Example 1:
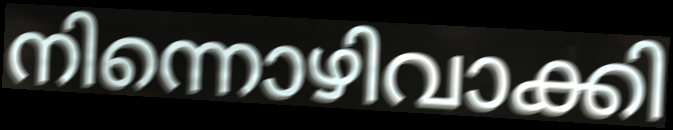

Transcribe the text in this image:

നിന്നൊഴിവാക്കി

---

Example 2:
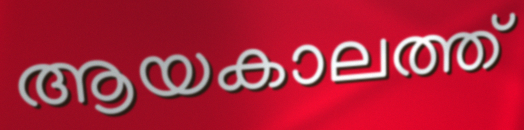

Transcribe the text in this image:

ആയകാലത്ത്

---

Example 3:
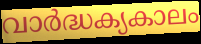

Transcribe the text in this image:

വാർദ്ധക്യകാലം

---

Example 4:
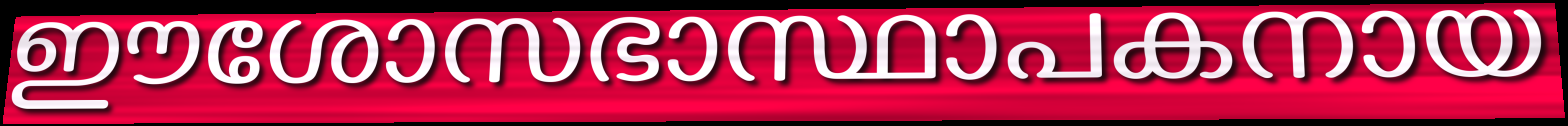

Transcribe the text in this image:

ഈശോസഭാസ്ഥാപകനായ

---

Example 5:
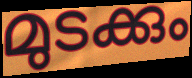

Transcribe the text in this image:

മുടക്കും